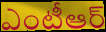
ఎంటీఆర్